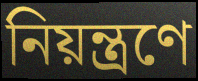
নিয়ন্ত্ৰণে